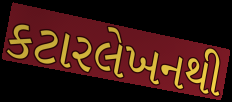
કટારલેખનથી